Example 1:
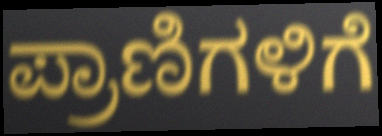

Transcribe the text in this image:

ಪ್ರಾಣಿಗಳಿಗೆ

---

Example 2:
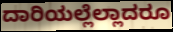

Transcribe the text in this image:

ದಾರಿಯಲ್ಲೆಲ್ಲಾದರೂ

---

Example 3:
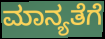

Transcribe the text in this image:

ಮಾನ್ಯತೆಗೆ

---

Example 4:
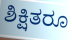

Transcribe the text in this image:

ಶಿಕ್ಷಿತರೂ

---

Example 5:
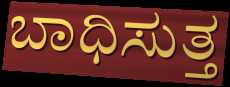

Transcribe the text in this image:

ಬಾಧಿಸುತ್ತ